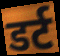
डर्ट